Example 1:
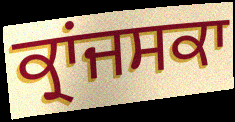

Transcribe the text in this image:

ਕ੍ਰਾਂਜਸਕਾ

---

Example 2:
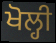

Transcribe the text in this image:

ਖੋਲ੍ਹੀ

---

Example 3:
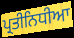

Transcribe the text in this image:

ਪ੍ਰਤੀਨਿਧੀਆ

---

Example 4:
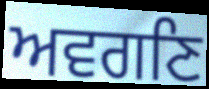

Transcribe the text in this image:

ਅਵਗਣਿ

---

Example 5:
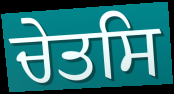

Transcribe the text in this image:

ਚੇਤਸਿ